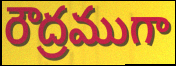
రౌద్రముగా